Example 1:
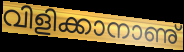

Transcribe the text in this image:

വിളിക്കാനാണു്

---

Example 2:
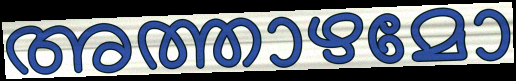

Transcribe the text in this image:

അത്താഴമോ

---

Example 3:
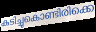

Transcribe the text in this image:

കുടിച്ചുകൊണ്ടിരിക്കെ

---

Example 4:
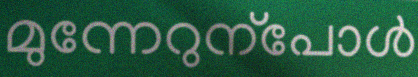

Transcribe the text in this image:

മുന്നേറുന്പോൾ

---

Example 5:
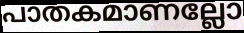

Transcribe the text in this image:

പാതകമാണല്ലോ